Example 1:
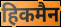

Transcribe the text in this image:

हिकमैन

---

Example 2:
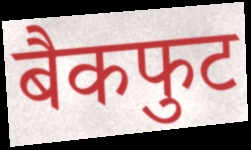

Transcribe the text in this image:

बैकफुट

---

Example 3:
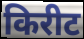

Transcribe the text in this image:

किरीट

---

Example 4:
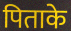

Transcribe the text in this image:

पिताके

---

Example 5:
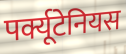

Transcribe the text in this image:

पर्क्यूटेनियस